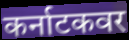
कर्नाटकवर